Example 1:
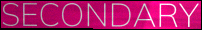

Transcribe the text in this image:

SECONDARY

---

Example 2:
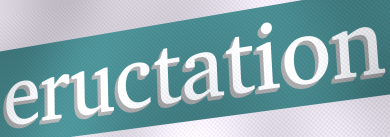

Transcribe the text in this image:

eructation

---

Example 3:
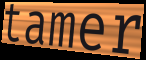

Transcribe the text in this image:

tamer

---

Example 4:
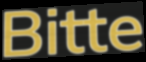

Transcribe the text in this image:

Bitte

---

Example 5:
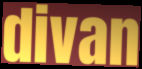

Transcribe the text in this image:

divan